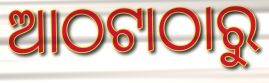
ଆଠଟାଠାରୁ